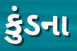
કુંડના